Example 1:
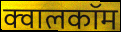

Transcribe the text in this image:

क्‍वालकॉम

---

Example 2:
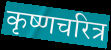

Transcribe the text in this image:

कृष्णचरित्र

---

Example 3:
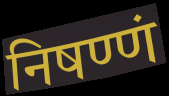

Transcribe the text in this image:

निषण्णं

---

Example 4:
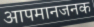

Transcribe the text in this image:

आपमानजनक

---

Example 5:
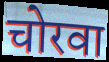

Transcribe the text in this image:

चोरवा